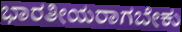
ಭಾರತೀಯರಾಗಬೇಕು